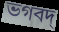
ভগবদ্